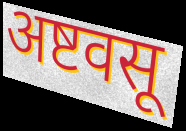
अष्टवसू